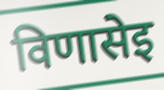
विणासेइ